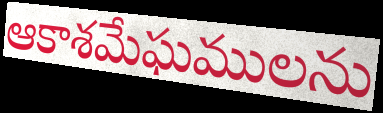
ఆకాశమేఘములను